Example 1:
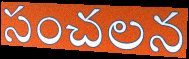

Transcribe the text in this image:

సంచలన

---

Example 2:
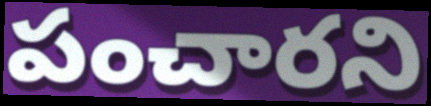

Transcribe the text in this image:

పంచారని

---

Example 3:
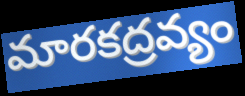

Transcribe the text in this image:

మారకద్రవ్యం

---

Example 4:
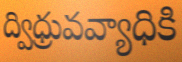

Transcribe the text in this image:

ద్విధ్రువవ్యాధికి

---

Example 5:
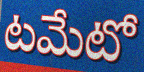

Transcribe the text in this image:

టమేటో